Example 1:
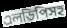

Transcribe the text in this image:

এলডিপিসহ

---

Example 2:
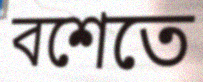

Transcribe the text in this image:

বশেতে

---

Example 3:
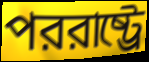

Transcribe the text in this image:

পররাষ্ট্রে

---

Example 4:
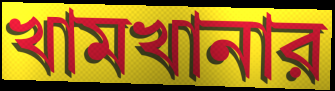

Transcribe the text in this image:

খামখানার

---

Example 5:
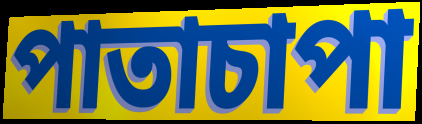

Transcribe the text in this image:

পাতাচাপা